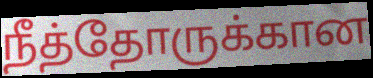
நீத்தோருக்கான